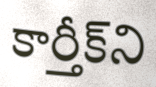
కార్తీక్‌ని